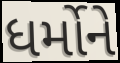
ધર્મોને